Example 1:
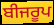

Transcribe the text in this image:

ਬੀਜਰੂਪ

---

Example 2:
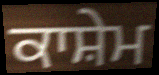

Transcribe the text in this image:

ਕਾਸ਼ੇਮ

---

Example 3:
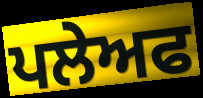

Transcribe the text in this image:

ਪਲੇਅਫ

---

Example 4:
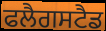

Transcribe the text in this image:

ਫਲੈਗਸਟੈਡ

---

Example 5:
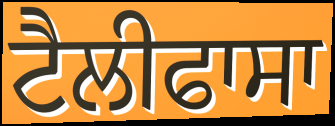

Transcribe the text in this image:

ਟੈਲੀਫਾਸਾ